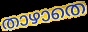
താഴാതെ